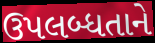
ઉપલબ્ધતાને